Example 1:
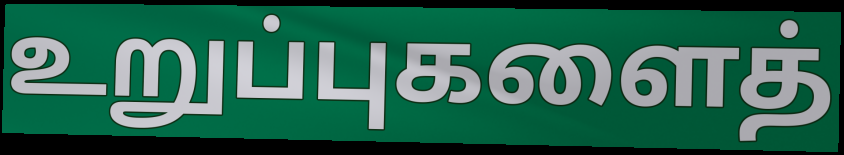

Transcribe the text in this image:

உறுப்புகளைத்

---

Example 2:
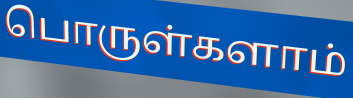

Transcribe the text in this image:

பொருள்களாம்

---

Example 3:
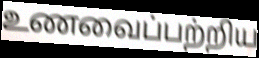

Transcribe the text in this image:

உணவைப்பற்றிய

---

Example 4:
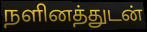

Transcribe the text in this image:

நளினத்துடன்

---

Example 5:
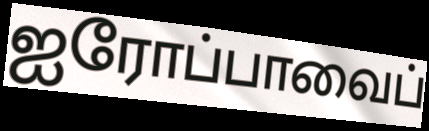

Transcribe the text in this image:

ஐரோப்பாவைப்